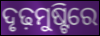
ଦୃଢ଼ମୁଷ୍ଟିରେ